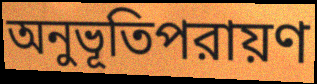
অনুভূতিপরায়ণ